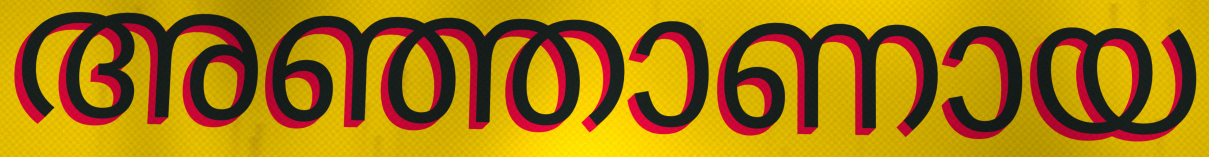
അഞ്ഞാണായ